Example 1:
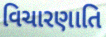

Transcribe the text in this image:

વિચારણાતિ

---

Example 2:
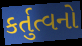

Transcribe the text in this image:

કર્તુત્વનો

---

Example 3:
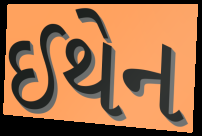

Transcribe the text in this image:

ઈથેન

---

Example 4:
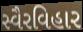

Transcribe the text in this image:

સ્વૈરવિહાર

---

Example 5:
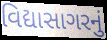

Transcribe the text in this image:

વિદ્યાસાગરનું